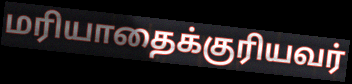
மரியாதைக்குரியவர்